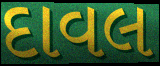
દાવલ